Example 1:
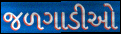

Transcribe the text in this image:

જળગાડીઓ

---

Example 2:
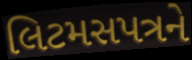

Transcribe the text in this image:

લિટમસપત્રને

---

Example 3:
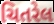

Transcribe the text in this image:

ચિતરેલ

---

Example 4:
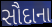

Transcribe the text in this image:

સૌદાના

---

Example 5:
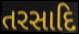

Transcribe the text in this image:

તરસાદિ